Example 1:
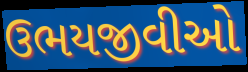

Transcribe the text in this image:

ઉભયજીવીઓ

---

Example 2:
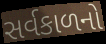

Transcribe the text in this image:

સર્વકાળનો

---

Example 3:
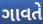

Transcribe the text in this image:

ગાવતે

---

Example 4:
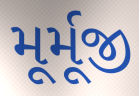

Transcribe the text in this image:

મૂર્મૂજી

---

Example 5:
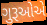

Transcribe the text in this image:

ગુરૂઓએ